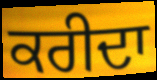
ਕਰੀਦਾ